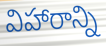
విహారాన్ని